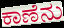
ಕಾಣೆನು